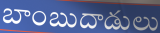
బాంబుదాడులు